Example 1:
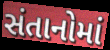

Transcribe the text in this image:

સંતાનોમાં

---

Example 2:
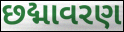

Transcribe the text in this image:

છદ્માવરણ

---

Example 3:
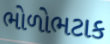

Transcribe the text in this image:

ભોળોભટાક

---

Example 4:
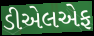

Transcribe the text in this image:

ડીએલએફ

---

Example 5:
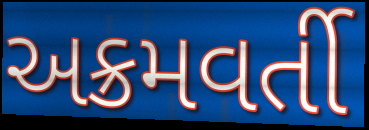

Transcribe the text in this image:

અક્રમવર્તી